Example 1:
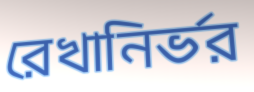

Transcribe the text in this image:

রেখানির্ভর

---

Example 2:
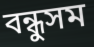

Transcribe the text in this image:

বন্ধুসম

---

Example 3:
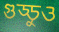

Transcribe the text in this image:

গুড্ডুও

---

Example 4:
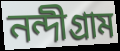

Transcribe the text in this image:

নন্দীগ্রাম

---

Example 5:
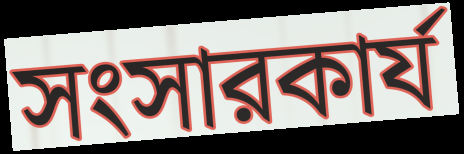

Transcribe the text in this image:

সংসারকার্য